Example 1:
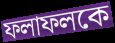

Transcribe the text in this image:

ফলাফলকে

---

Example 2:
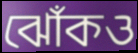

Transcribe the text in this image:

ঝোঁকও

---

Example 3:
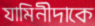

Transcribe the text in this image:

যামিনীদাকে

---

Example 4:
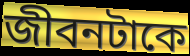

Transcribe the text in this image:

জীবনটাকে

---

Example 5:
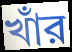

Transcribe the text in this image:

খাঁর